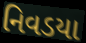
નિવડયા